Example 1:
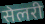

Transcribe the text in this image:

सेलरी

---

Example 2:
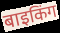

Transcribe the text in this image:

बाइकिंग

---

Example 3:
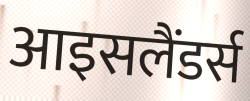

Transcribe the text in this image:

आइसलैंडर्स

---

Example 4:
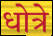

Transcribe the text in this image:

धोत्रे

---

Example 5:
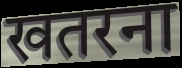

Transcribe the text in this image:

खतरना